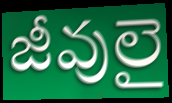
జీవులై